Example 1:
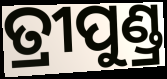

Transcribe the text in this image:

ତ୍ରୀପୁଣ୍ଡ୍ର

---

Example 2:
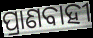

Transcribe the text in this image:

ପ୍ରାଣବାହୀ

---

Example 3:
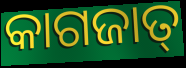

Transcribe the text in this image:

କାଗଜାତ୍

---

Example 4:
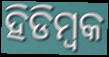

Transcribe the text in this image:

ହିଡିମ୍ବକ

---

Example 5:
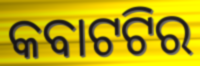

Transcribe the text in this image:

କବାଟଟିର